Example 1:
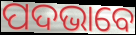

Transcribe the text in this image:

ପଦଭାବେ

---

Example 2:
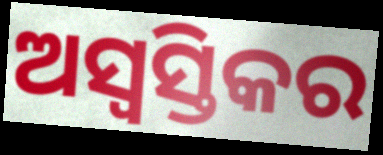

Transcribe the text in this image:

ଅସ୍ୱସ୍ତିକର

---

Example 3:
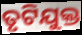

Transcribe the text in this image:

ତୃଟିଯୁକ୍ତ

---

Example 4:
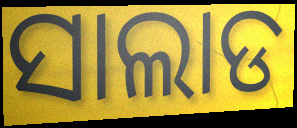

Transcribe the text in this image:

ସାଲାଡ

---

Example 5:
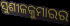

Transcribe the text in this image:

ସୁଶୀଳକୁମାରର